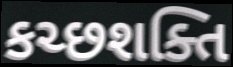
કચ્છશક્તિ